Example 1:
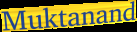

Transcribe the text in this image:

Muktanand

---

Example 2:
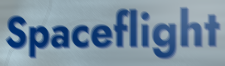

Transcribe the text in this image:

Spaceflight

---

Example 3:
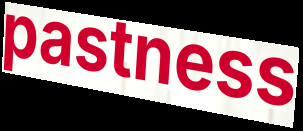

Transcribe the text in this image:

pastness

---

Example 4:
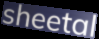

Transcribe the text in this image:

sheetal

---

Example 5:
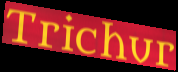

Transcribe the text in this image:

Trichur